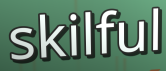
skilful